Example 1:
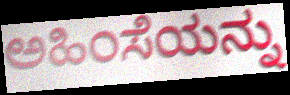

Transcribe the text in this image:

ಅಹಿಂಸೆಯನ್ನು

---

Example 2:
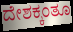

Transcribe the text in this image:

ದೇಶಕ್ಕಂತೂ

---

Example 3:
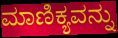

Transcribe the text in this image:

ಮಾಣಿಕ್ಯವನ್ನು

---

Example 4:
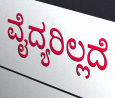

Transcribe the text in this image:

ವೈದ್ಯರಿಲ್ಲದೆ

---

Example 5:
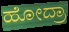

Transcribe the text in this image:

ಹೋದ್ರಾ